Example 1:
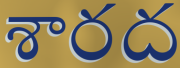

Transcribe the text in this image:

శారద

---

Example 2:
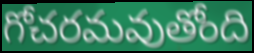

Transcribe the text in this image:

గోచరమవుతోంది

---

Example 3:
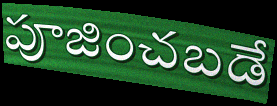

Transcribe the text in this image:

పూజించబడే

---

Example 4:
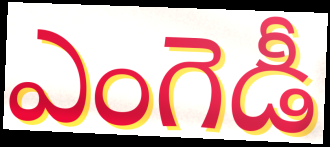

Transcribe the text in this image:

ఎంగెడీ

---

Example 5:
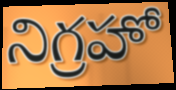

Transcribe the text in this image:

నిగ్రహో